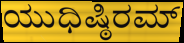
ಯುಧಿಷ್ಠಿರಮ್